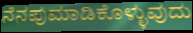
ನೆನಪುಮಾಡಿಕೊಳ್ಳುವುದು